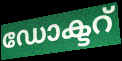
ഡോക്ടറ്